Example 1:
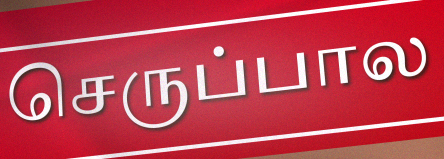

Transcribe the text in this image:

செருப்பால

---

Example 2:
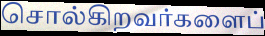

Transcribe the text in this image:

சொல்கிறவர்களைப்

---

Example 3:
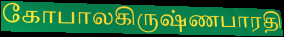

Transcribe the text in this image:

கோபாலகிருஷ்ணபாரதி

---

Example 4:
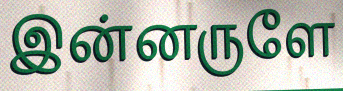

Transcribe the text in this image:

இன்னருளே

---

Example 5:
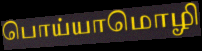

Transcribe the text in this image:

பொய்யாமொழி